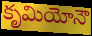
కృమియోనౌ